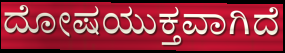
ದೋಷಯುಕ್ತವಾಗಿದೆ